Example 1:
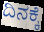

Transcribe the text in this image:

ದಿನಕ್ಕೆ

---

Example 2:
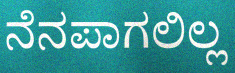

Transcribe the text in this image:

ನೆನಪಾಗಲಿಲ್ಲ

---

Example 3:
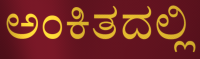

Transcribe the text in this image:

ಅಂಕಿತದಲ್ಲಿ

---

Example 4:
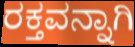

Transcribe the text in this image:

ರಕ್ತವನ್ನಾಗಿ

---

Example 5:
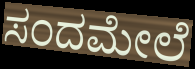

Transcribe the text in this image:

ಸಂದಮೇಲೆ